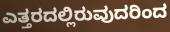
ಎತ್ತರದಲ್ಲಿರುವುದರಿಂದ